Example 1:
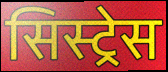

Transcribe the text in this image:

सिस्ट्रेस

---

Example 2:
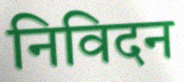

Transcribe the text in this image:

निविदन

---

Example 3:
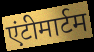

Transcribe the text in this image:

एंटीमार्टम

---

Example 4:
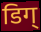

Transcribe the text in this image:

डिग्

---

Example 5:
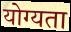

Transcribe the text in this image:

योग्यता